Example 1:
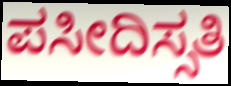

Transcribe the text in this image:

ಪಸೀದಿಸ್ಸತಿ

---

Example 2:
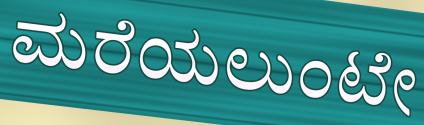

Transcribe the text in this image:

ಮರೆಯಲುಂಟೇ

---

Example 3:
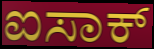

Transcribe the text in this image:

ಐಸಾಕ್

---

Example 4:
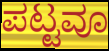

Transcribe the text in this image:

ಪಟ್ಟವೂ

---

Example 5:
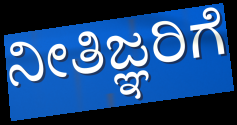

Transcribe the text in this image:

ನೀತಿಜ್ಞರಿಗೆ